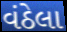
વંઠેલા